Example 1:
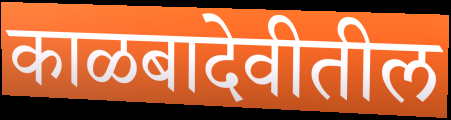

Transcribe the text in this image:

काळबादेवीतील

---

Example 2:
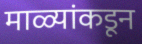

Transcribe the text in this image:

माळ्यांकडून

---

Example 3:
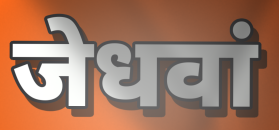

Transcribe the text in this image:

जेधवां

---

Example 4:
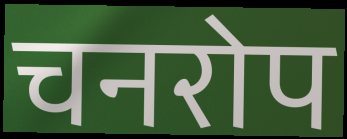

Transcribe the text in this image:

चनरोप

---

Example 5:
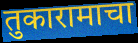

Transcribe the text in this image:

तुकारामाचा